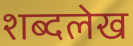
शब्दलेख